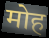
मोह